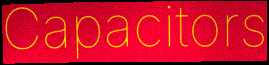
Capacitors